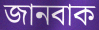
জানবাক